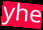
yhe